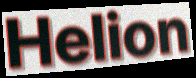
Helion